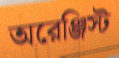
অরেঞ্জিস্ট